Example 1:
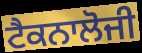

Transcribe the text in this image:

ਟੈਕਨਾਲੋਜੀ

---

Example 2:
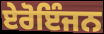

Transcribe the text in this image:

ਏਰੋਇੰਜਨ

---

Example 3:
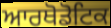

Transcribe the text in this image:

ਆਰਥੋਡੋਟਿਕ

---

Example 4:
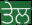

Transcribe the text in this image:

ਤੇਲ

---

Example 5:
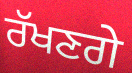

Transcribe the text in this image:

ਰੱਖਣਗੇ